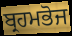
ਬ੍ਰਹਮਭੋਜ